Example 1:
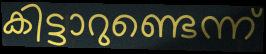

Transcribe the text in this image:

കിട്ടാറുണ്ടെന്ന്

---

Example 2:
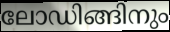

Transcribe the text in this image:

ലോഡിങ്ങിനും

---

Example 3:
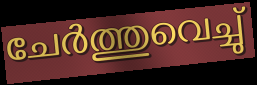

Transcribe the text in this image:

ചേർത്തുവെച്ചു്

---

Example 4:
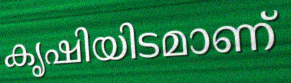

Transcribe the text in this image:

കൃഷിയിടമാണ്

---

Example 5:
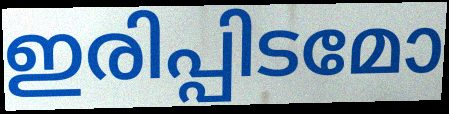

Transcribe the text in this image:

ഇരിപ്പിടമോ